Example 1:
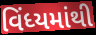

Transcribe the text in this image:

વિંધ્યમાંથી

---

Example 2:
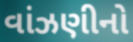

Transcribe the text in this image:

વાંઝણીનો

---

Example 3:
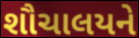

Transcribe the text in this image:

શૌચાલયને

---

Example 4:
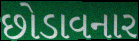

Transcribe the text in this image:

છોડાવનાર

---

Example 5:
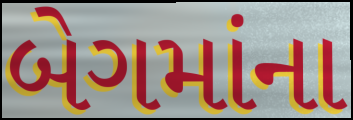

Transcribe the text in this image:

બેગમાંના